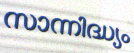
സാന്നിദ്ധ്യം